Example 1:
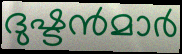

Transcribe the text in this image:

ദുഷ്ടൻമാർ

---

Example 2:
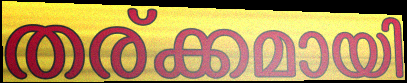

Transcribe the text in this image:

തര്ക്കമായി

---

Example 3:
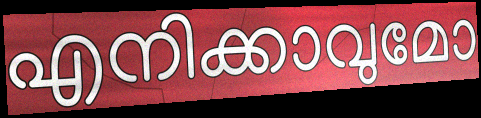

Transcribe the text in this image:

എനിക്കാവുമോ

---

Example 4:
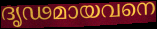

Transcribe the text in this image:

ദൃഢമായവനെ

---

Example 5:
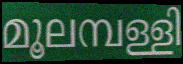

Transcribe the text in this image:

മൂലമ്പള്ളി